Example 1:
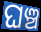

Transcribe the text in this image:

ଘଞ୍ଚ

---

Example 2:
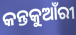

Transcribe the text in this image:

କନ୍ତକୁଆଁରୀ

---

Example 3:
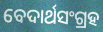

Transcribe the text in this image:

ବେଦାର୍ଥସଂଗ୍ରହ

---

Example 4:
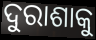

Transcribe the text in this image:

ଦୁରାଶାକୁ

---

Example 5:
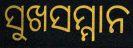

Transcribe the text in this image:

ସୁଖସମ୍ମାନ